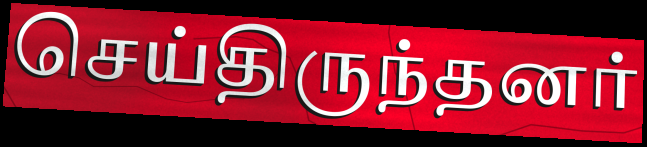
செய்திருந்தனர்